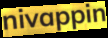
nivappin